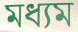
মধ্যম